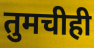
तुमचीही